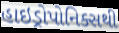
હાઇડ્રોપોનિક્સથી